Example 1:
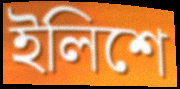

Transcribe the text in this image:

ইলিশে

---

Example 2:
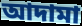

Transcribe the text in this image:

আদামা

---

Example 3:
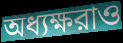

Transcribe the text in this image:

অধ্যক্ষরাও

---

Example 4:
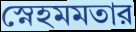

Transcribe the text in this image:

স্নেহমমতার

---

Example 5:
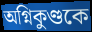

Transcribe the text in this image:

অগ্নিকুণ্ডকে